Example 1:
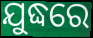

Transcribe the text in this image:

ଯୁଦ୍ଧରେ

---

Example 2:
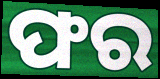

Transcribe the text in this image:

ଫର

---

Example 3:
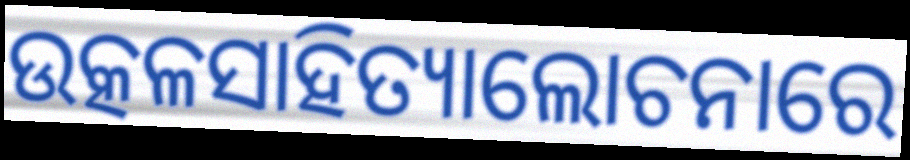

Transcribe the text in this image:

ଉତ୍କଳସାହିତ୍ୟାଲୋଚନାରେ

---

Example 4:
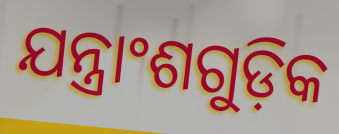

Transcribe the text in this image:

ଯନ୍ତ୍ରାଂଶଗୁଡ଼ିକ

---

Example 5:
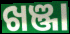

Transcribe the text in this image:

ଖଞ୍ଜା